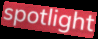
spotlight